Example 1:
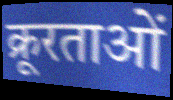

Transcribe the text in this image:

क्रूरताओं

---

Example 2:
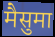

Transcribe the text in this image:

मैसुमा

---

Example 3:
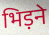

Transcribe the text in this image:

भिड़ने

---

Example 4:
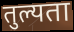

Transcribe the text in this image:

तुल्यता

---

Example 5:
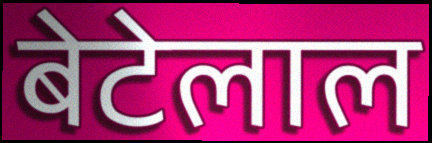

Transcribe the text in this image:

बेटेलाल